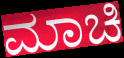
ಮಾಚಿ